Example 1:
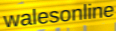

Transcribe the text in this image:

walesonline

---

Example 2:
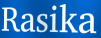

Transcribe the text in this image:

Rasika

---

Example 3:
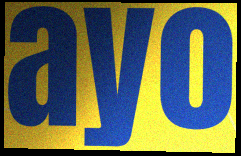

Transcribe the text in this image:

ayo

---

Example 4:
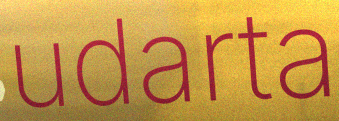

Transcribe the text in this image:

udarta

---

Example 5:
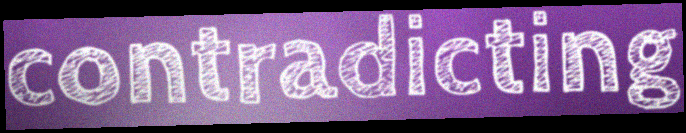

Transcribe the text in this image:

contradicting